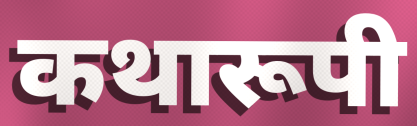
कथारूपी